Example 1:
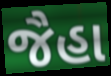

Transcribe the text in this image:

જૈહા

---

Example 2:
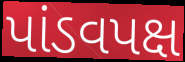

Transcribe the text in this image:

પાંડવપક્ષ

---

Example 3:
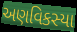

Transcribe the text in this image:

અણવિકસ્યા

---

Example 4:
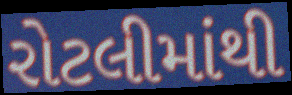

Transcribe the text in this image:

રોટલીમાંથી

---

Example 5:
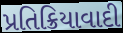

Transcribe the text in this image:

પ્રતિક્રિયાવાદી